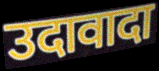
उदावादा